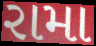
રામા